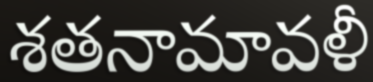
శతనామావళీ